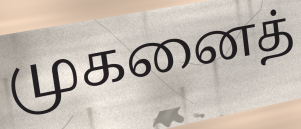
முகனைத்